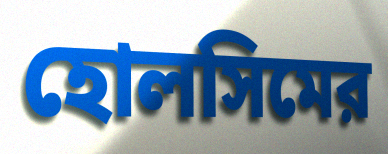
হোলসিমের